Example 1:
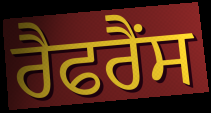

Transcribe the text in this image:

ਰੈਫਰੈਂਸ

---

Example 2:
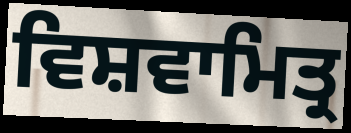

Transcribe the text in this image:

ਵਿਸ਼ਵਾਮਿਤ੍ਰ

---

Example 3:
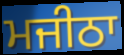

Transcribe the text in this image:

ਮਜੀਠਾ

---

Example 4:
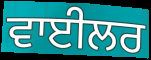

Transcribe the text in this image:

ਵਾਈਲਰ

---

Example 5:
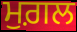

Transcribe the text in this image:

ਮੁਗ਼ਲ